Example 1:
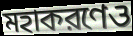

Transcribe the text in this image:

মহাকরণেও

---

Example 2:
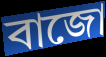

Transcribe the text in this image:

বাজো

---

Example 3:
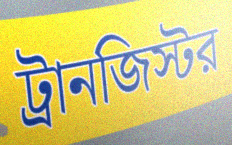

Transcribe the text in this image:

ট্রানজিস্টর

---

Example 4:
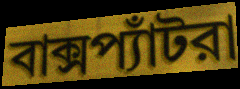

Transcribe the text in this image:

বাক্সপ্যাঁটরা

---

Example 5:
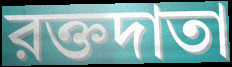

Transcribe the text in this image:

রক্তদাতা